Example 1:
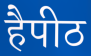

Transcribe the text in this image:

हैपीठ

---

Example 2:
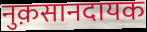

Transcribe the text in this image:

नुक़सानदायक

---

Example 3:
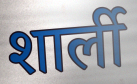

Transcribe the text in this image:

शार्ली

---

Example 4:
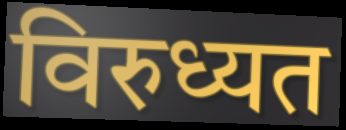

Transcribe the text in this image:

विरुध्यत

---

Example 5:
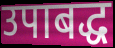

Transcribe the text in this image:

उपाबद्ध